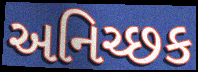
અનિચ્છક